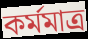
কর্মমাত্র